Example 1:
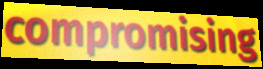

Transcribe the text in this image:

compromising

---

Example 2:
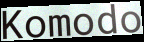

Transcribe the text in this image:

Komodo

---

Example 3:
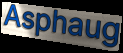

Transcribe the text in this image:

Asphaug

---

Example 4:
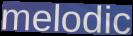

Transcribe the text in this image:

melodic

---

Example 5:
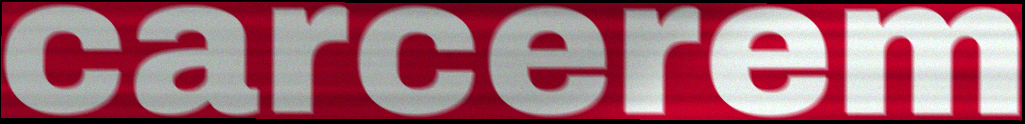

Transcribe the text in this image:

carcerem